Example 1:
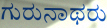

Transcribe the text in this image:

ಗುರುನಾಥರು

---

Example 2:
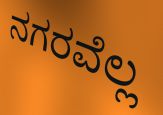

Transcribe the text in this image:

ನಗರವೆಲ್ಲ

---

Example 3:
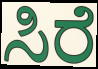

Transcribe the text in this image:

ಸಿರೆ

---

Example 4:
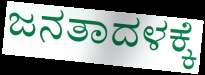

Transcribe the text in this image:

ಜನತಾದಳಕ್ಕೆ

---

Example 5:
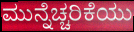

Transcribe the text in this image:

ಮುನ್ನೆಚ್ಚರಿಕೆಯು